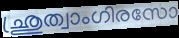
ഛ്രുത്വാംഗിരസോ